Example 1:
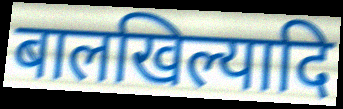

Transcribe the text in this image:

बालखिल्यादि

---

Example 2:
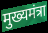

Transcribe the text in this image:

मुख्यमंत्रा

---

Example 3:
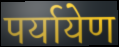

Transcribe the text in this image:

पर्यायेण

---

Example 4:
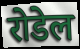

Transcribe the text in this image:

रोडेल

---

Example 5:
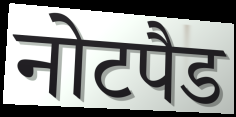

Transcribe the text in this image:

नोटपैड